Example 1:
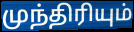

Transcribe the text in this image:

முந்திரியும்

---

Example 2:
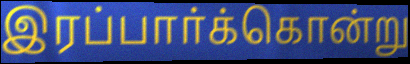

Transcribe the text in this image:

இரப்பார்க்கொன்று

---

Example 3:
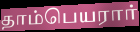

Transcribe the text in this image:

தாம்பெயரார்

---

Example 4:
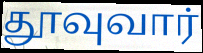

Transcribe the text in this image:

தூவுவார்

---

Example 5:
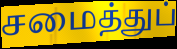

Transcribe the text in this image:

சமைத்துப்